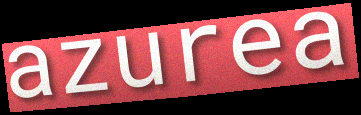
azurea